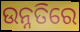
ଉନ୍ନତିରେ